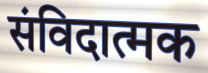
संविदात्मक